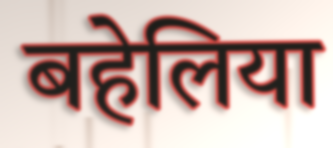
बहेलिया